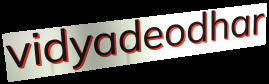
vidyadeodhar